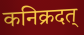
कनिक्रदत्